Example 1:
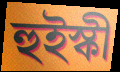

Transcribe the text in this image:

হুইস্কী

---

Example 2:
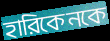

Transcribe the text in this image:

হারিকেনকে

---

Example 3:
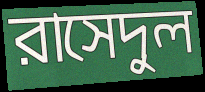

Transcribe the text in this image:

রাসেদুল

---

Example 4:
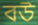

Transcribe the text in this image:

বউ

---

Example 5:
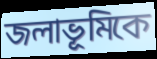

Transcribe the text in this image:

জলাভূমিকে